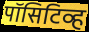
पॉसिटिव्ह